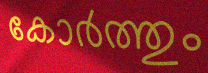
കോർത്തും